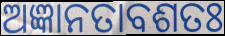
ଅଜ୍ଞାନତାବଶତଃ